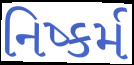
નિષ્કર્મ